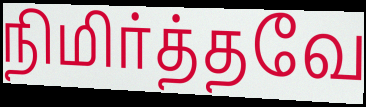
நிமிர்த்தவே